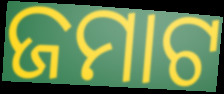
ଜମାଟ